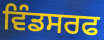
ਵਿੰਡਸਰਫ